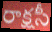
రాక్షసీ